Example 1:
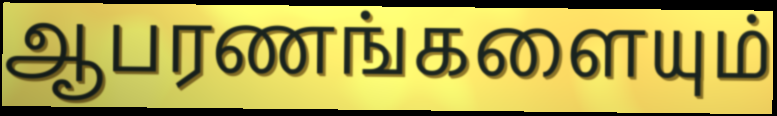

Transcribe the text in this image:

ஆபரணங்களையும்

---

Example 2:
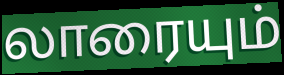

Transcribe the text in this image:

லாரையும்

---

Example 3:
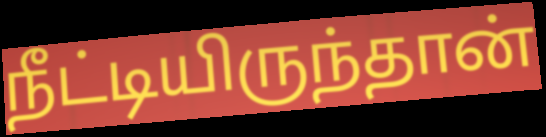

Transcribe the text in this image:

நீட்டியிருந்தான்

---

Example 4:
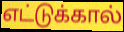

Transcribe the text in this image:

எட்டுக்கால்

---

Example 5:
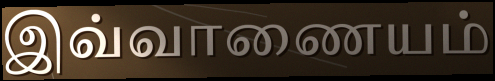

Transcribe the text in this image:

இவ்வாணையம்